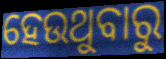
ହେଉଥୁବାରୁ